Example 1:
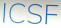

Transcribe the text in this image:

ICSF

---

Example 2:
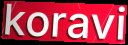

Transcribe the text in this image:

koravi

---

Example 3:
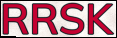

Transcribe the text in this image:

RRSK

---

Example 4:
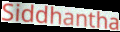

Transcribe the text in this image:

Siddhantha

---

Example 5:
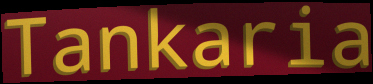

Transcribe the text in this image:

Tankaria